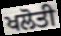
ਖਲੋਤੀ